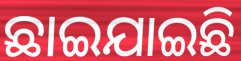
ଛାଇଯାଇଛି